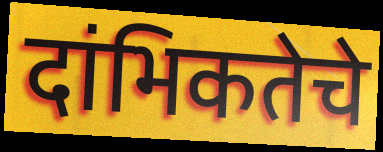
दांभिकतेचे